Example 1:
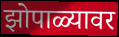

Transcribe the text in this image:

झोपाळ्यावर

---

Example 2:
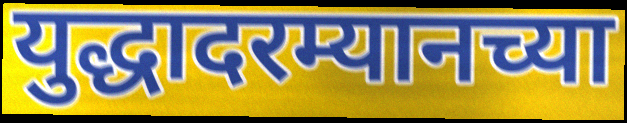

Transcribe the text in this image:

युद्धादरम्यानच्या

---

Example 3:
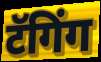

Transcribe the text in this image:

टॅगिंग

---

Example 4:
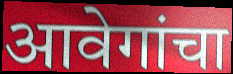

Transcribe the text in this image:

आवेगांचा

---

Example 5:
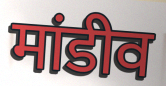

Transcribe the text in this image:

मांडीव